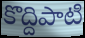
కొద్దిపాటి